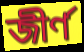
জীর্ণ